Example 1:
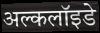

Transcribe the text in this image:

अल्कलॉइडे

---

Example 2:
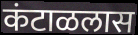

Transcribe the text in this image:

कंटाळलास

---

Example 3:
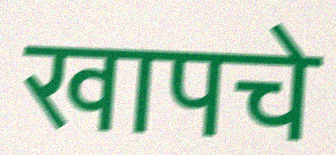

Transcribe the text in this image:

खापचे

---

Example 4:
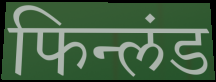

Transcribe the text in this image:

फिन्लंड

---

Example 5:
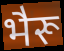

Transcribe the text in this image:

भैरू